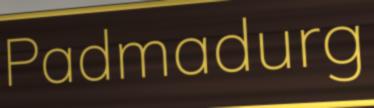
Padmadurg